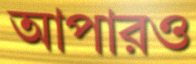
আপারও